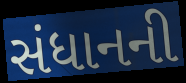
સંધાનની